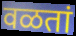
वळतां